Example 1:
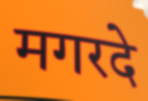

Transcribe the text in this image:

मगरदे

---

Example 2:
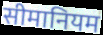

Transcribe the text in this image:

सीमानियम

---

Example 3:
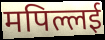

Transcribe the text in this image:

मपिल्लई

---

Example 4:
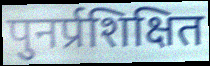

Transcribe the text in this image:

पुनर्प्रशिक्षित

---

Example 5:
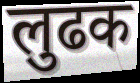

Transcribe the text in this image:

लुढक